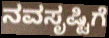
ನವಸೃಷ್ಟಿಗೆ